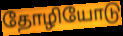
தோழியோடு